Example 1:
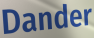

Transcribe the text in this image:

Dander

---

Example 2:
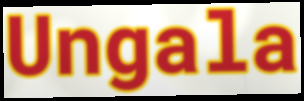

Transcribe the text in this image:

Ungala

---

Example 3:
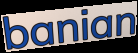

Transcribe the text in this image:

banian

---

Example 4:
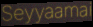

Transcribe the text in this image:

Seyyaamai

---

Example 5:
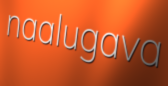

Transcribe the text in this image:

naalugava